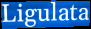
Ligulata